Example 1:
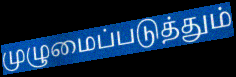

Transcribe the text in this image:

முழுமைப்படுத்தும்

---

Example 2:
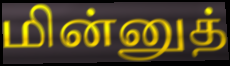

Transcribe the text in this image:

மின்னுத்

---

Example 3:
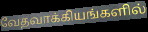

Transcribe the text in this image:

வேதவாக்கியங்களில்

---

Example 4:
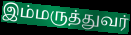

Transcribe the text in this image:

இம்மருத்துவர்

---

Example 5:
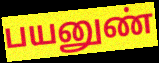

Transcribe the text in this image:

பயனுண்